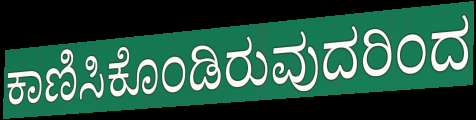
ಕಾಣಿಸಿಕೊಂಡಿರುವುದರಿಂದ